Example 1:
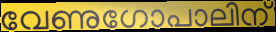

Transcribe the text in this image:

വേണുഗോപാലിന്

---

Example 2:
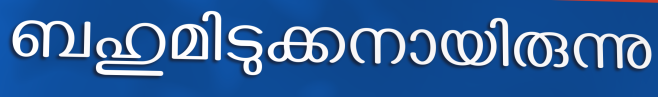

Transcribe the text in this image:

ബഹുമിടുക്കനായിരുന്നു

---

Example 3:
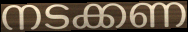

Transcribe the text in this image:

നടക്കണ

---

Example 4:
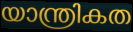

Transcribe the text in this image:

യാന്ത്രികത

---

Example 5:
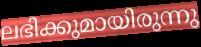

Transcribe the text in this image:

ലഭിക്കുമായിരുന്നു